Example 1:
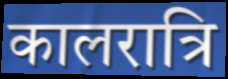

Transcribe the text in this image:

कालरात्रि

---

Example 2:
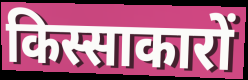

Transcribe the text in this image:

किस्साकारों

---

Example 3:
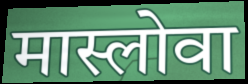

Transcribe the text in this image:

मास्लोवा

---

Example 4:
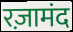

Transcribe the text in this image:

रज़ामंद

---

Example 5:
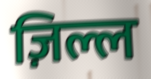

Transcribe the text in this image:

ज़िल्ल